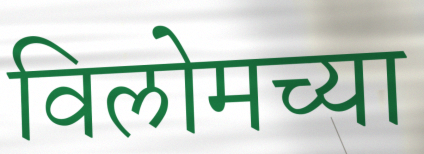
विलोमच्या